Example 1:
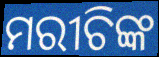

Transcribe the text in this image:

ମରୀଚିଙ୍କ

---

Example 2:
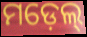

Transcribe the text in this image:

ମଡ଼େଲ୍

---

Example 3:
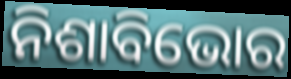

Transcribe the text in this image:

ନିଶାବିଭୋର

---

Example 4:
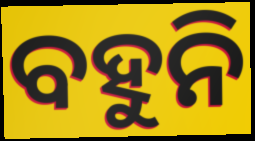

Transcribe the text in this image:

ବହୁନି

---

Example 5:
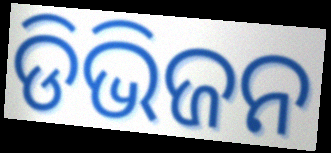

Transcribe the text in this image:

ଡିଭିଜନ